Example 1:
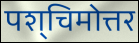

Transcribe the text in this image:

पश्चिमोत्तर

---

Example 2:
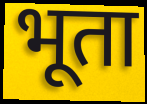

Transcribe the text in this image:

भूता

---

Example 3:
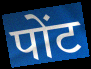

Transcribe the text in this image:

पोंट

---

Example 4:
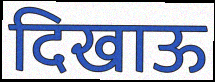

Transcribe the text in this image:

दिखाऊ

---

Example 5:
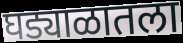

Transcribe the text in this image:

घड्याळातला